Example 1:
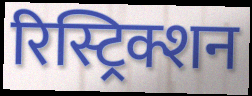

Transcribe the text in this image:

रिस्ट्रिक्शन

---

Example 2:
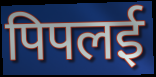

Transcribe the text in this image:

पिपलई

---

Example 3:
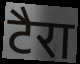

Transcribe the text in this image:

टैरा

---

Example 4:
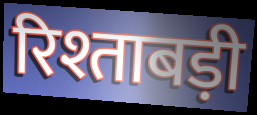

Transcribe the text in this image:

रिश्ताबड़ी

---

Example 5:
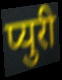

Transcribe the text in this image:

प्युरी